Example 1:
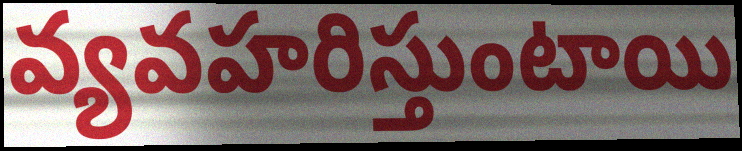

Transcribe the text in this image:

వ్యవహరిస్తుంటాయి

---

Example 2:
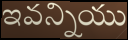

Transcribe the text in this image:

ఇవన్నియు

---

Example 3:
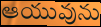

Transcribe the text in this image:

ఆయువును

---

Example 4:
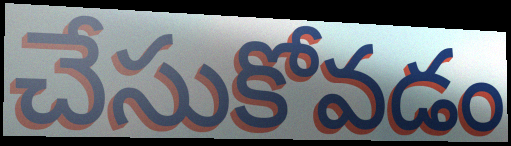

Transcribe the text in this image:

చేసుకోవడం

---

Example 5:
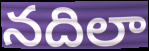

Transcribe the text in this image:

నదిలా